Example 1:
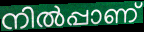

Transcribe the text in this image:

നിൽപ്പാണ്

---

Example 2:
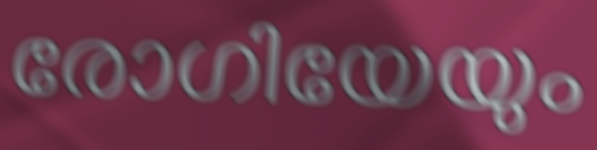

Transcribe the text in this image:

രോഗിയേയും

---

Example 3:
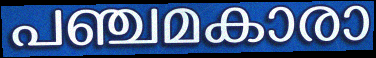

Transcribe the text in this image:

പഞ്ചമകാരാ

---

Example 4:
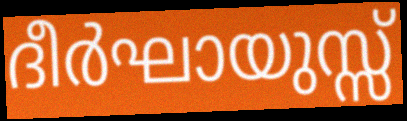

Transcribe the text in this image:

ദീർഘായുസ്സ്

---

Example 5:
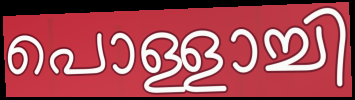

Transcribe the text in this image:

പൊള്ളാച്ചി